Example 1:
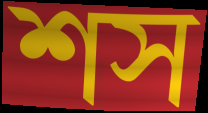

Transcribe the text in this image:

শস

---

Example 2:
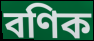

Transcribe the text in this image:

বণিক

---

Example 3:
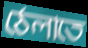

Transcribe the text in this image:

ঠেলাতে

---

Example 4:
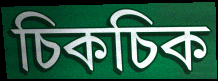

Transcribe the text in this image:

চিকচিক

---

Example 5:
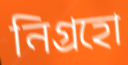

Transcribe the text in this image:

নিগ্রহো